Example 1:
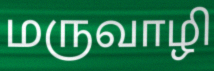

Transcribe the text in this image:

மருவாழி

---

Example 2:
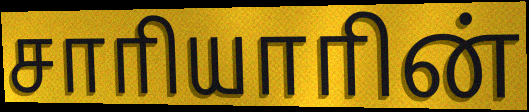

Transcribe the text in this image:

சாரியாரின்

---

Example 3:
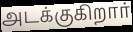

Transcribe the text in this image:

அடக்குகிறார்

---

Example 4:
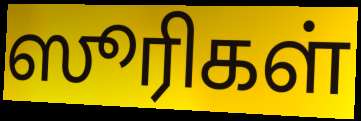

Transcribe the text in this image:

ஸூரிகள்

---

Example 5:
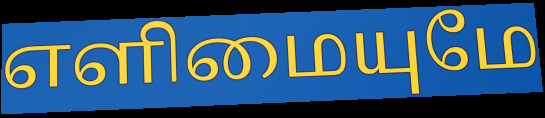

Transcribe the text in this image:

எளிமையுமே